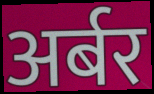
अर्बर